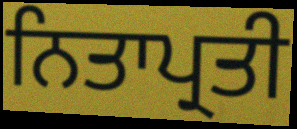
ਨਿਤਾਪ੍ਰਤੀ